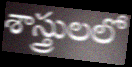
శాస్త్రులలో